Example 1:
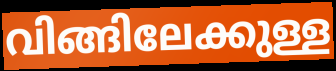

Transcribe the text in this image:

വിങ്ങിലേക്കുള്ള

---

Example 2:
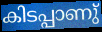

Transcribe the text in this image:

കിടപ്പാണു്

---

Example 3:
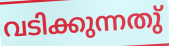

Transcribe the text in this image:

വടിക്കുന്നതു്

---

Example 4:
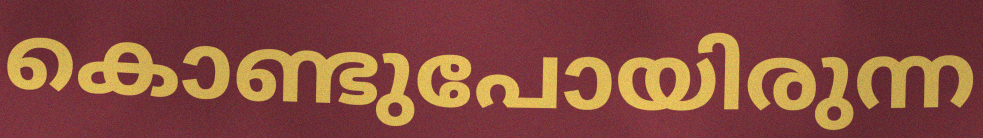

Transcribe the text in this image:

കൊണ്ടുപോയിരുന്ന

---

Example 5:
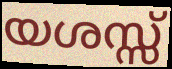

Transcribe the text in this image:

യശസ്സ്